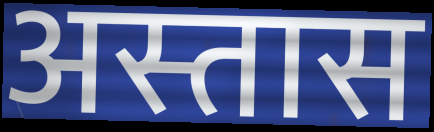
अस्तास